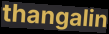
thangalin